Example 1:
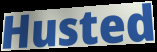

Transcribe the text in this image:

Husted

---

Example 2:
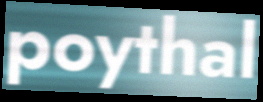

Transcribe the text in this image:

poythal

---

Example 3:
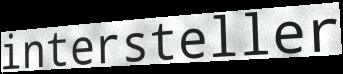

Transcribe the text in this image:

intersteller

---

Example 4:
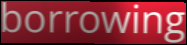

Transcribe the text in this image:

borrowing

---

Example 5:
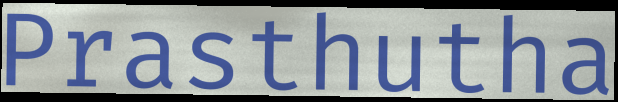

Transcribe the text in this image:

Prasthutha